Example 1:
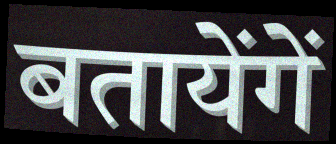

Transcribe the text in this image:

बतायेंगें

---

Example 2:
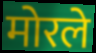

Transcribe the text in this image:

मोरले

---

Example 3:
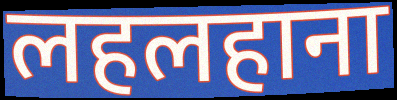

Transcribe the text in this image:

लहलहाना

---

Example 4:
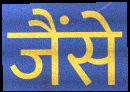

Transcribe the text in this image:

जैंसे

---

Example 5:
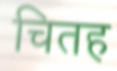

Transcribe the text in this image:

चितह